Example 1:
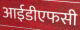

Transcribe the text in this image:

आईडीएफसी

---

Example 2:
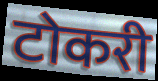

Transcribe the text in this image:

टोकरी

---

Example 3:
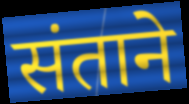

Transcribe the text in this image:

संताने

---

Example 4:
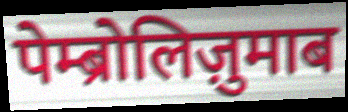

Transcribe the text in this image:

पेम्ब्रोलिज़ुमाब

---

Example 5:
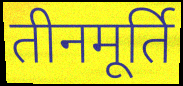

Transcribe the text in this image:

तीनमूर्ति